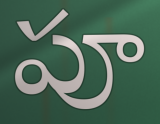
పూ